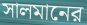
সালমানের